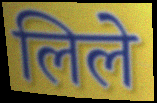
लिले